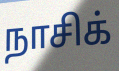
நாசிக்